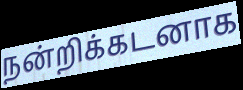
நன்றிக்கடனாக